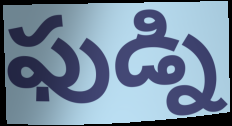
ఫుడ్ని